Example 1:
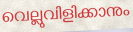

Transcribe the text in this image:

വെല്ലുവിളിക്കാനും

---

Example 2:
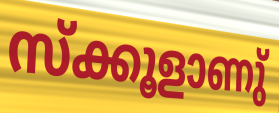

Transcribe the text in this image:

സ്ക്കൂളാണു്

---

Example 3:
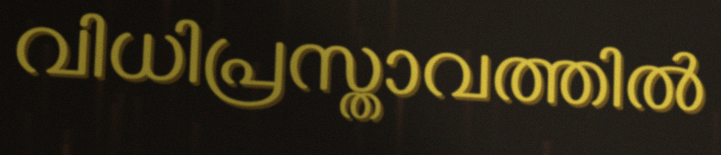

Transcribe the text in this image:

വിധിപ്രസ്താവത്തിൽ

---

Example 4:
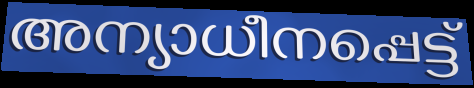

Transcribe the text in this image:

അന്യാധീനപ്പെട്ട്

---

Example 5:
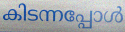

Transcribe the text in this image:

കിടന്നപ്പോൾ